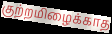
குற்றமிழைக்காத